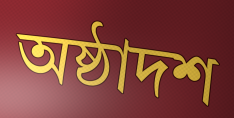
অষ্ঠাদশ